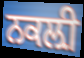
ਨਕਲ਼ੀ